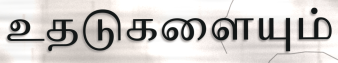
உதடுகளையும்